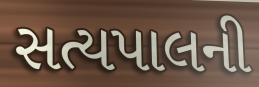
સત્યપાલની